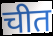
चीत